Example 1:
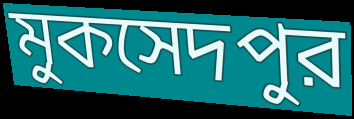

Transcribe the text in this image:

মুকসেদপুর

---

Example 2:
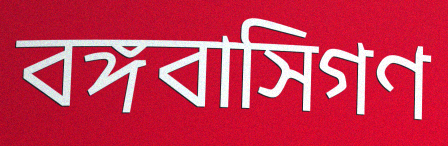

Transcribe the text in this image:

বঙ্গবাসিগণ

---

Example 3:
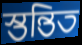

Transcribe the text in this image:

স্তন্তিত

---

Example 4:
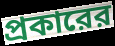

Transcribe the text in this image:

প্রকারের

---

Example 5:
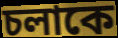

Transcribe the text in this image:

চলাকে